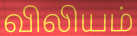
விலியம்